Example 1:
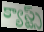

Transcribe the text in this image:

క్యాస్ట్స్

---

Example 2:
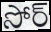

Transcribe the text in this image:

సోర్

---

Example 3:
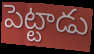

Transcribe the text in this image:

పెట్టాడు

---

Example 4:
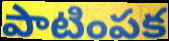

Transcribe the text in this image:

పాటింపక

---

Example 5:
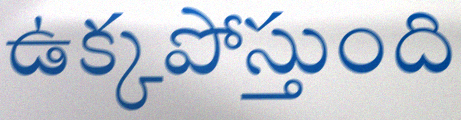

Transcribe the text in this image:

ఉక్కపోస్తుంది